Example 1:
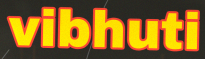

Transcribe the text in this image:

vibhuti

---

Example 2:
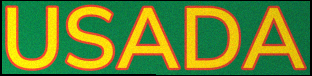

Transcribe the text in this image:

USADA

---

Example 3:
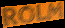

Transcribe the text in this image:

ROLM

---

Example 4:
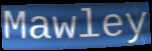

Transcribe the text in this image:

Mawley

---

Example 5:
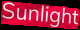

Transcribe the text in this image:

Sunlight